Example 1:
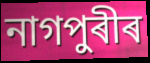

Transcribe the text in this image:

নাগপুৰীৰ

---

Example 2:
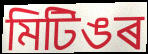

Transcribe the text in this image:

মিটিঙৰ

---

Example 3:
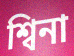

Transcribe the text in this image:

শ্বিনা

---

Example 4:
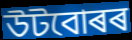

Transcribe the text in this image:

উটবোৰৰ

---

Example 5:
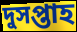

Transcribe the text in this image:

দুসপ্তাহ